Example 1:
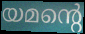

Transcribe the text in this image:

യമന്റെ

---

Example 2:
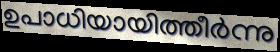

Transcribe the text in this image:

ഉപാധിയായിത്തീർന്നു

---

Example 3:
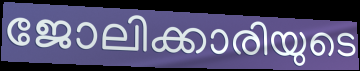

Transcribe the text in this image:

ജോലിക്കാരിയുടെ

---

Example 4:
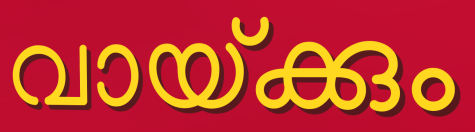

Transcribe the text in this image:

വായ്‌ക്കും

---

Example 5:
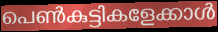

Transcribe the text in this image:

പെൺകുട്ടികളേക്കാൾ